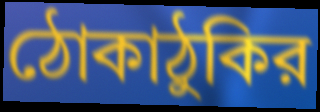
ঠোকাঠুকির